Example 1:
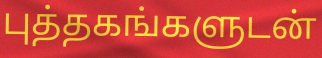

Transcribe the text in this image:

புத்தகங்களுடன்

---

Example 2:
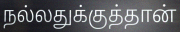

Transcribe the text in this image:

நல்லதுக்குத்தான்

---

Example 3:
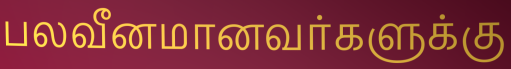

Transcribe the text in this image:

பலவீனமானவர்களுக்கு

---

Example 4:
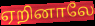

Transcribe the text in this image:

ஏறினாலே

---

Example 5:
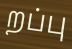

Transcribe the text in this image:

றப்பு